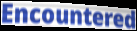
Encountered